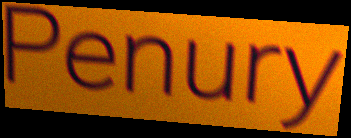
Penury